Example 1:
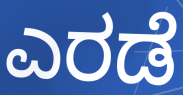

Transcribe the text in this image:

ಎರಡೆ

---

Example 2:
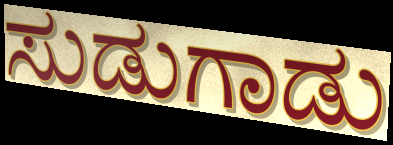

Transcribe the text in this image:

ಸುಡುಗಾಡು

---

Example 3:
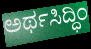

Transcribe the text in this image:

ಅರ್ಥಸಿದ್ಧಿಂ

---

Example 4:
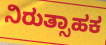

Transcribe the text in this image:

ನಿರುತ್ಸಾಹಕ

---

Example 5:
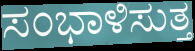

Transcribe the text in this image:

ಸಂಭಾಳಿಸುತ್ತ